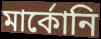
মার্কোনি